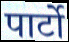
पार्टो